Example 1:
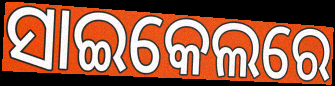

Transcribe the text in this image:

ସାଇକେଲରେ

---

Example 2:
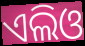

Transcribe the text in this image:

ଏଲିଓ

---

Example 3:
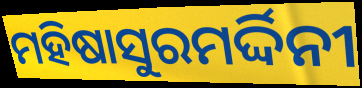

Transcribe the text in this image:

ମହିଷାସୁରମର୍ଦ୍ଦିନୀ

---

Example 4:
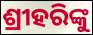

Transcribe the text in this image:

ଶ୍ରୀହରିଙ୍କୁ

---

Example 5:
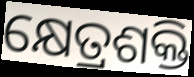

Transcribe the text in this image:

କ୍ଷେତ୍ରଶକ୍ତି